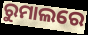
ରୁମାଲରେ